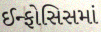
ઈન્ફોસિસમાં